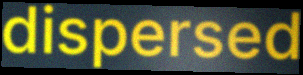
dispersed